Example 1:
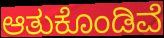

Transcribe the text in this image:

ಆತುಕೊಂಡಿವೆ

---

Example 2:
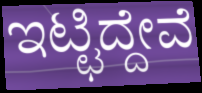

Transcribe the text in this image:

ಇಟ್ಟಿದ್ದೇವೆ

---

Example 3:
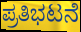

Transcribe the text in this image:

ಪ್ರತಿಭಟನೆ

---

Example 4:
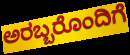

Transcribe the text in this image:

ಅರಬ್ಬರೊಂದಿಗೆ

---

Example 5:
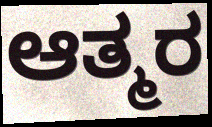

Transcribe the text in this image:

ಆತ್ಮರ